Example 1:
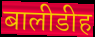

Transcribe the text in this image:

बालीडीह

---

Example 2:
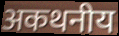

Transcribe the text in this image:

अकथनीय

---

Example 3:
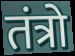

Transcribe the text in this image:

तंत्रो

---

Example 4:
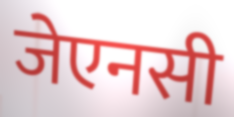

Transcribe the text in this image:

जेएनसी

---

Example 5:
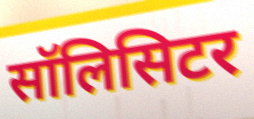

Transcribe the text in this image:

सॉलिसिटर